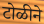
टोळीने